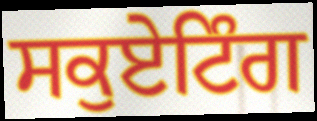
ਸਕੁਏਟਿੰਗ